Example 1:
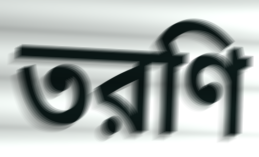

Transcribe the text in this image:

তরণি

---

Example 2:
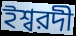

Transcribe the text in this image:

ইশ্বরদী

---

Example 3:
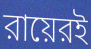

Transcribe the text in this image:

রায়েরই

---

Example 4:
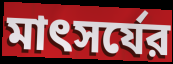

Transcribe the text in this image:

মাৎসর্যের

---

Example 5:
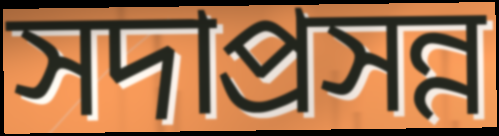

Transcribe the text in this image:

সদাপ্রসন্ন